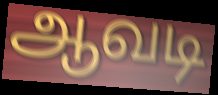
ஆவடி